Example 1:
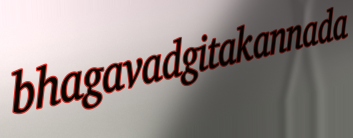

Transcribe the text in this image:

bhagavadgitakannada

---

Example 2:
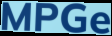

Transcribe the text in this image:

MPGe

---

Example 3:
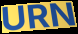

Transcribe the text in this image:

URN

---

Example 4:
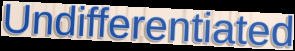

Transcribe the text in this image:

Undifferentiated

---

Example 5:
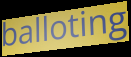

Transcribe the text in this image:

balloting